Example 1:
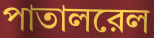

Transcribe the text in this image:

পাতালরেল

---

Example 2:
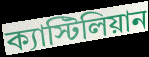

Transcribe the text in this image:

ক্যাস্টিলিয়ান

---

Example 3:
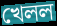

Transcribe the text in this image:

খেলল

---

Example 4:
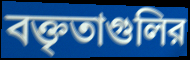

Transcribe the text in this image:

বক্তৃতাগুলির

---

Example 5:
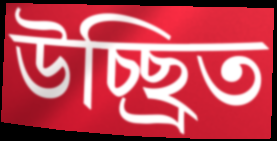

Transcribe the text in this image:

উচ্ছ্রিত